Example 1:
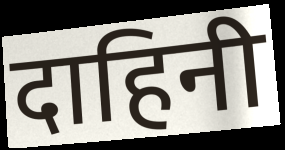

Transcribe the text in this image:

दाहिनी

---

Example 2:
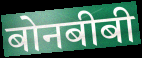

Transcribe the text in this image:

बोनबीबी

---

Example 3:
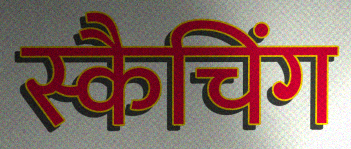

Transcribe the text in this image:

स्कैचिंग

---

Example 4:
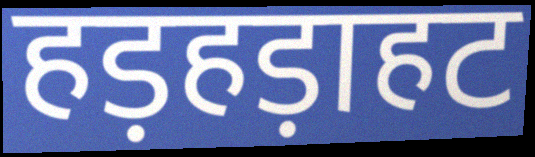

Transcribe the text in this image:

हड़हड़ाहट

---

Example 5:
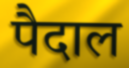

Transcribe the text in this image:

पैदाल